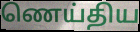
ணெய்திய